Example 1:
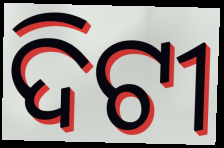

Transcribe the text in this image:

ଦିଟୀ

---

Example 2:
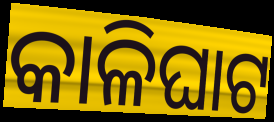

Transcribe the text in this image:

କାଳିଘାଟ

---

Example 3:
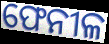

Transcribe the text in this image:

ଫେନୀଳ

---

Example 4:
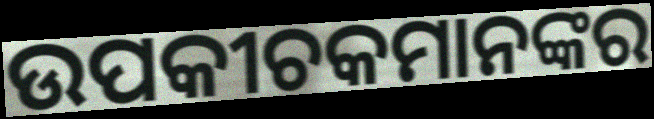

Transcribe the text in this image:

ଉପକୀଚକମାନଙ୍କର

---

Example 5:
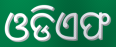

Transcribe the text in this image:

ଓଡିଏଫ